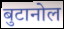
बुटानोल